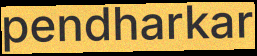
pendharkar